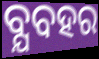
ବ୍ଯବହର